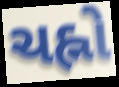
ચહ્નો